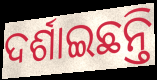
ଦର୍ଶାଇଛନ୍ତି